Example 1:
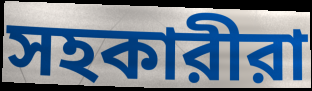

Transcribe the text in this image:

সহকারীরা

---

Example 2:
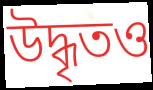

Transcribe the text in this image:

উদ্ধৃতও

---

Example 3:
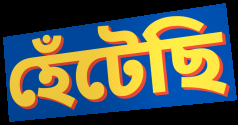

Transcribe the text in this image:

হেঁটেছি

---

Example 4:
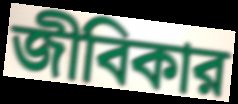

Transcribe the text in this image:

জীবিকার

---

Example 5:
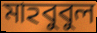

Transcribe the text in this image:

মাহবুবুল